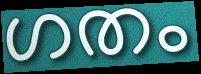
ഗതം